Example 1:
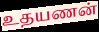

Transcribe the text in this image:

உதயணன்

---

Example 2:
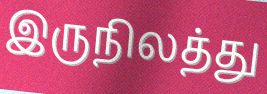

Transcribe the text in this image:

இருநிலத்து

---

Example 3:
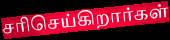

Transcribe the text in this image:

சரிசெய்கிறார்கள்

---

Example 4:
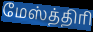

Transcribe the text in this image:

மேஸ்த்திரி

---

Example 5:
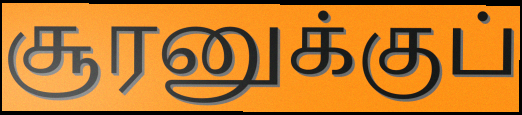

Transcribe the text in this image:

சூரனுக்குப்